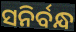
ସନିର୍ବନ୍ଧ